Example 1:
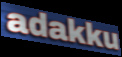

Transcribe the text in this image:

adakku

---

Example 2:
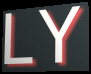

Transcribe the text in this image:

LY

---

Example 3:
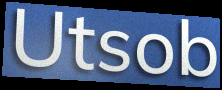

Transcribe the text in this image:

Utsob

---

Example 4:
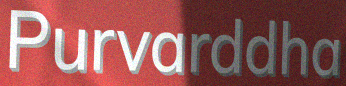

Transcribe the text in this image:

Purvarddha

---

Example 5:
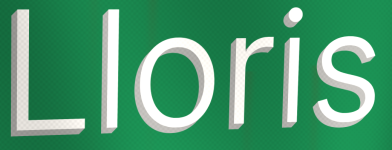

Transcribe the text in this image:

Lloris